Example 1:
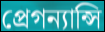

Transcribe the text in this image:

প্রেগন্যান্সি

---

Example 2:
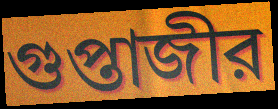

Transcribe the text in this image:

গুপ্তাজীর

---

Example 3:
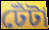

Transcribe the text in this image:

টেঁটা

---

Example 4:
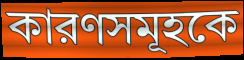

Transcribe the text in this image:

কারণসমূহকে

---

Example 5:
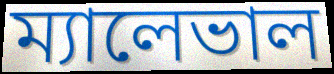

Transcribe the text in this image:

ম্যালেভাল